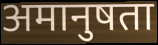
अमानुषता